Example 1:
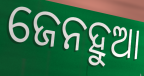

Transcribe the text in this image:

ଜେନହୁଆ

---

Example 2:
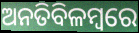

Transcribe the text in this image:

ଅନତିବିଳମ୍ବରେ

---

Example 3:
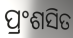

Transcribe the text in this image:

ପ୍ରଂଶସିତ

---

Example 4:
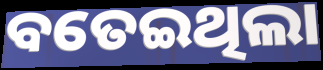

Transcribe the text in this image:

ବତେଇଥିଲା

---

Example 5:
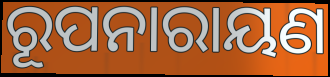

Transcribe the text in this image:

ରୂପନାରାୟଣ